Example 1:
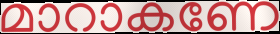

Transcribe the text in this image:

മാറാകണേ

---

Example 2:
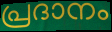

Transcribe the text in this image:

പ്രദാനം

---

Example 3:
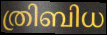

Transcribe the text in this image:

ത്രിബിധ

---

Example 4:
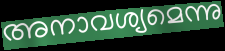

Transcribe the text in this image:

അനാവശ്യമെന്നു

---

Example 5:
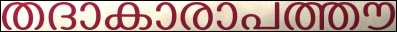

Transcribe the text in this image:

തദാകാരാപത്തൗ